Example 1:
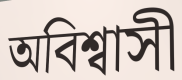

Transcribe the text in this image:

অবিশ্বাসী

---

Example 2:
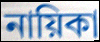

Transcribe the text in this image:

নায়িকা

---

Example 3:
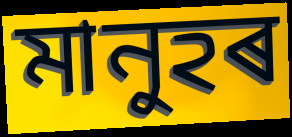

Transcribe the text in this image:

মানুহৰ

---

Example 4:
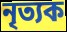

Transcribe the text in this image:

নৃত্যক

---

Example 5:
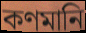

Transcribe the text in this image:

কণমানি